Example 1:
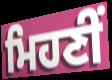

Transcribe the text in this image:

ਮਿਹਣੀਂ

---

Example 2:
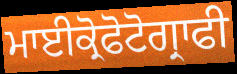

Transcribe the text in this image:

ਮਾਈਕ੍ਰੋਫੋਟੋਗ੍ਰਾਫੀ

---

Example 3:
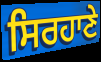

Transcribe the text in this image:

ਸਿਰਹਾਣੇ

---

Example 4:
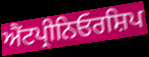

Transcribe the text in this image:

ਐਂਟਪ੍ਰੀਨਿਓਰਸ਼ਿਪ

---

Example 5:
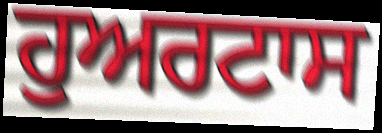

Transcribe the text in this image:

ਹੁਅਰਟਾਸ